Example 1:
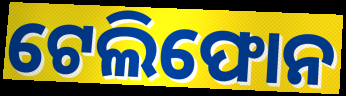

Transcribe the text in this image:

ଟେଲିଫୋନ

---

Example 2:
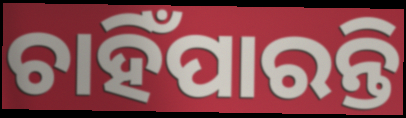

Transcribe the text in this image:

ଚାହିଁପାରନ୍ତି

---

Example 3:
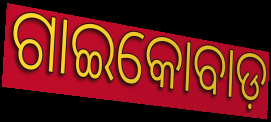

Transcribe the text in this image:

ଗାଇକୋବାଡ଼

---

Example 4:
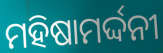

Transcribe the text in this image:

ମହିଷାମର୍ଦ୍ଦନୀ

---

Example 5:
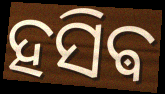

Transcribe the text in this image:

ହସିଵ